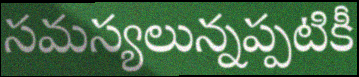
సమస్యలున్నప్పటికీ